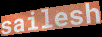
sailesh